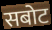
सबोट